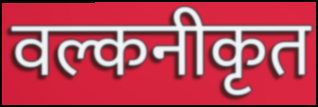
वल्कनीकृत